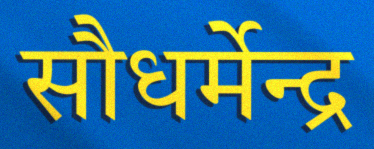
सौधर्मेन्द्र